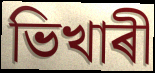
ভিখাৰী